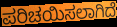
ಪರಿಚಯಿಸಲಾಗಿದೆ